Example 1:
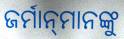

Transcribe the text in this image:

ଜର୍ମାନ୍‌ମାନଙ୍କୁ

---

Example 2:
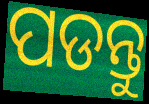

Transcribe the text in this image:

ପଡନ୍ତୁ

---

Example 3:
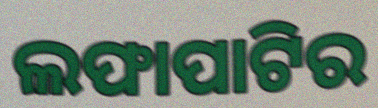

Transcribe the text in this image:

ଲଫାପାଟିର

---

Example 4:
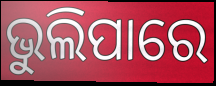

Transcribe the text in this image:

ଭୁଲିପାରେ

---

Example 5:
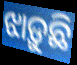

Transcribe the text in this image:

ଝାଡ଼ୁଛି